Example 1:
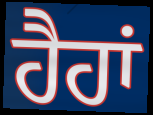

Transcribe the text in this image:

ਹੈਹਾਂ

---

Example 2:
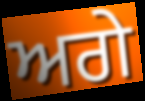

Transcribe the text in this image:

ਅਗੇ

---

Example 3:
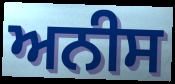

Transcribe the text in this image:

ਅਨੀਸ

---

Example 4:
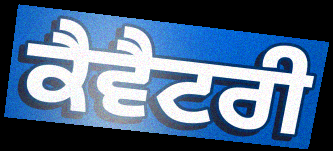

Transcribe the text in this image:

ਕੈਵੈਟਰੀ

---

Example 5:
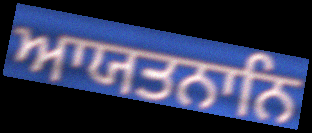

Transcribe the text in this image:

ਆਯਤਨਾਨਿ